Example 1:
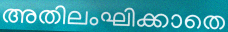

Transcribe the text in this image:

അതിലംഘിക്കാതെ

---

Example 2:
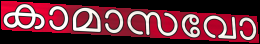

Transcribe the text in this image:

കാമാസവോ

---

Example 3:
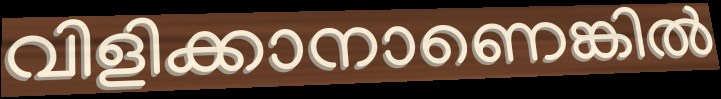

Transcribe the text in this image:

വിളിക്കാനാണെങ്കിൽ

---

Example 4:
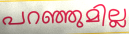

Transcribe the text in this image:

പറഞ്ഞുമില്ല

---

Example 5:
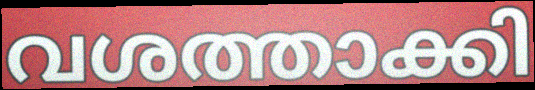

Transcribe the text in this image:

വശത്താക്കി